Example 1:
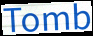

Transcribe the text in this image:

Tomb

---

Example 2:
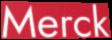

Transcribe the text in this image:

Merck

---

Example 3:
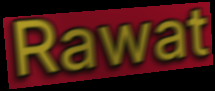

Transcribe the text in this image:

Rawat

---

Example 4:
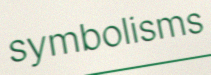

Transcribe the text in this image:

symbolisms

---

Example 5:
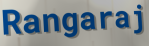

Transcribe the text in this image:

Rangaraj